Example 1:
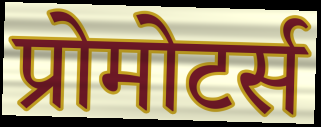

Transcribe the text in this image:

प्रोमोटर्स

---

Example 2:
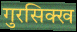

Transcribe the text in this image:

गुरसिक्ख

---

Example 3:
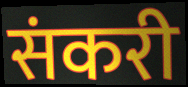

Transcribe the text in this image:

संकरी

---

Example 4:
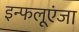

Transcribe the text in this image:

इन्फलूएंजा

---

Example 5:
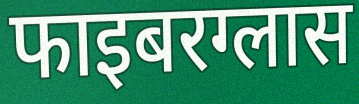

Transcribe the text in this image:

फाइबरग्लास